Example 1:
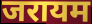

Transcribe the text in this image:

जरायम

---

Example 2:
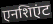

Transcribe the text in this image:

एनशिएंट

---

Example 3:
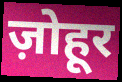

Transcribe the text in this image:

ज़ोहूर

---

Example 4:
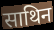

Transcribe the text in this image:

साथिन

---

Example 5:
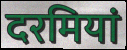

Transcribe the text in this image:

दरमियां